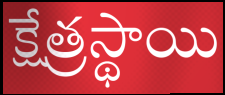
క్షేత్రస్థాయి